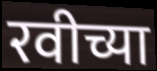
रवीच्या